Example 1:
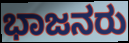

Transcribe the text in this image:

ಭಾಜನರು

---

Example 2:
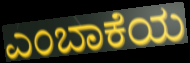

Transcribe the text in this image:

ಎಂಬಾಕೆಯ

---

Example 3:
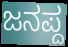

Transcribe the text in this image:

ಜನಪ್ದ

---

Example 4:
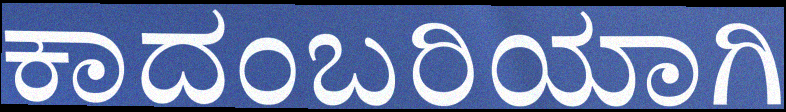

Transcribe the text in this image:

ಕಾದಂಬರಿಯಾಗಿ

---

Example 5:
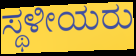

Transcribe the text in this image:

ಸ್ಥಳೀಯರು